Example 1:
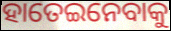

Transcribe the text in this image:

ହାତେଇନେବାକୁ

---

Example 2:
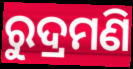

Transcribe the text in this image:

ରୁଦ୍ରମଣି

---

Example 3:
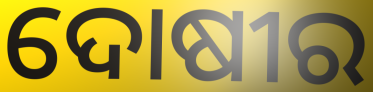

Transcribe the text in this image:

ଦୋଷୀର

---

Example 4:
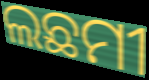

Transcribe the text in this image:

ଲଛମୀ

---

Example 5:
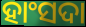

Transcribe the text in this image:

ହାଂସଦା